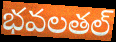
భవలతల్